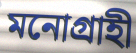
মনোগ্ৰাহী